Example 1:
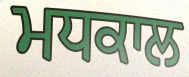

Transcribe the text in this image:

ਮਧਕਾਲ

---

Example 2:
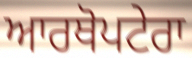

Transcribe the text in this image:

ਆਰਥੋਪਟੇਰਾ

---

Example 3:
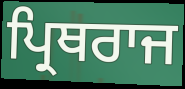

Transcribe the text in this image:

ਪ੍ਰਿਥਰਾਜ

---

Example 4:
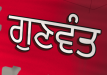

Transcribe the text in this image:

ਗੁਣਵੰਤ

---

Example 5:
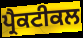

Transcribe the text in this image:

ਪ੍ਰੈਕਟੀਕਲ